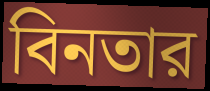
বিনতার